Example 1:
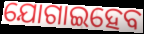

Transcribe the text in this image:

ଯୋଗାଇହେବ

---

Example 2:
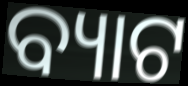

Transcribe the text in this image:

ବ୍ୟାଟ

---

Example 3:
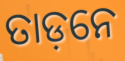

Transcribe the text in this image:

ତାଡ଼ନେ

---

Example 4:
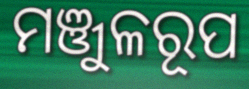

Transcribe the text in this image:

ମଞ୍ଜୁଳରୂପ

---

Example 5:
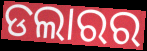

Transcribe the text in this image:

ଡଲାରର